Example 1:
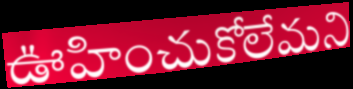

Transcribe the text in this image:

ఊహించుకోలేమని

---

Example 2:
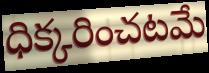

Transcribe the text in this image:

ధిక్కరించటమే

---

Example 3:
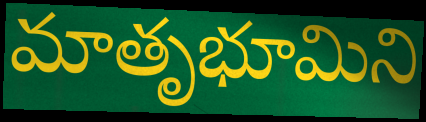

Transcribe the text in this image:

మాతృభూమిని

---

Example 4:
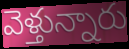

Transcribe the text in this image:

వెళ్తున్నారు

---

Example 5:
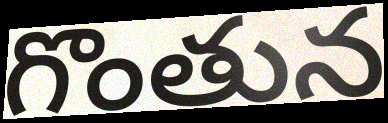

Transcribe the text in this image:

గొంతున